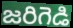
జరిగెడి